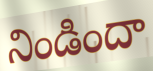
నిండిందా